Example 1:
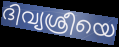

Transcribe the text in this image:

ദിവ്യശ്രീയെ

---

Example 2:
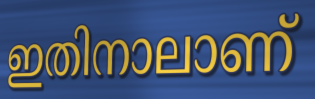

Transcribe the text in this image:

ഇതിനാലാണ്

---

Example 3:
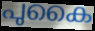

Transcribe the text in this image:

പുകൈ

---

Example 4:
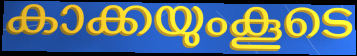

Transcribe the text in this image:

കാക്കയുംകൂടെ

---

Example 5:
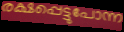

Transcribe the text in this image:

രക്ഷപ്പെട്ടുപോന്ന